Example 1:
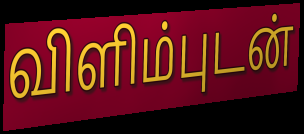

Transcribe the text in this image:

விளிம்புடன்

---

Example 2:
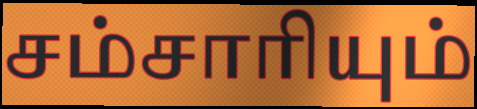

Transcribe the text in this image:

சம்சாரியும்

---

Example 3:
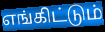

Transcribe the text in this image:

எங்கிட்டும்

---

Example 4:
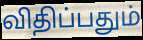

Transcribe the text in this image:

விதிப்பதும்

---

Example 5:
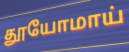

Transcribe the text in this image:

தூயோமாய்